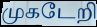
முகடேறி